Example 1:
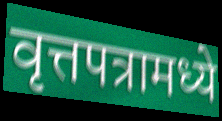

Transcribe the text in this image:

वृत्तपत्रामध्ये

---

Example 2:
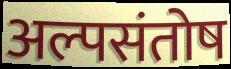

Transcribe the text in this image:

अल्पसंतोष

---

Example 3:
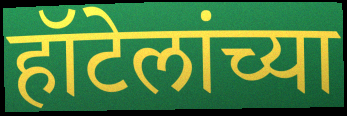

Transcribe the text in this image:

हॉटेलांच्या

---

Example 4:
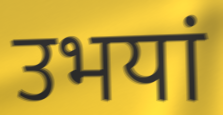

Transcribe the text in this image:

उभयां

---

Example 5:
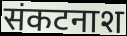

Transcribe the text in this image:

संकटनाश